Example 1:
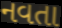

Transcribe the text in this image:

નવતા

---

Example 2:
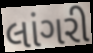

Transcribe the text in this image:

લાંગરી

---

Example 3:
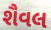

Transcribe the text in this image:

શૈવલ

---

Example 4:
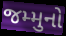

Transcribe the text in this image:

જમ્મુનો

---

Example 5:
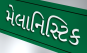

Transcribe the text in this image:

મેલાનિસ્ટિક